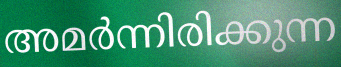
അമർന്നിരിക്കുന്ന